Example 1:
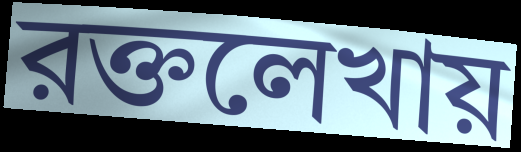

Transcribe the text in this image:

রক্তলেখায়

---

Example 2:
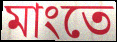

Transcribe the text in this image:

মাংতে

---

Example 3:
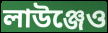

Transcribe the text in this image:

লাউঞ্জেও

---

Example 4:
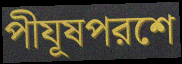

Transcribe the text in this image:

পীযূষপরশে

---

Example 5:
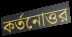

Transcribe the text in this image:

কর্তনোত্তর